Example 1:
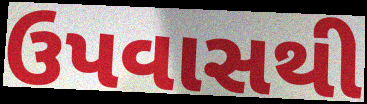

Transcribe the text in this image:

ઉપવાસથી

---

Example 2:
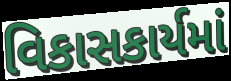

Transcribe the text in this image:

વિકાસકાર્યમાં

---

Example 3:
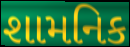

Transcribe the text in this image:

શામનિક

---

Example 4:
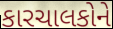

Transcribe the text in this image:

કારચાલકોને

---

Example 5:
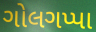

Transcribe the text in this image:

ગોલગપ્પા